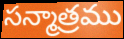
సన్మాత్రము